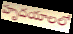
హృదయాలలో